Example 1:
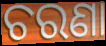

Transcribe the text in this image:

ଚରଣା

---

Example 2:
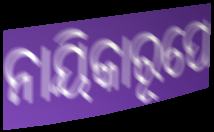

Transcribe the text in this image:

ନାୟିକାରୂପେ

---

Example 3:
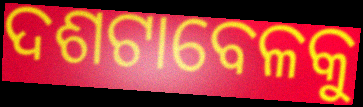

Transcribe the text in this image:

ଦଶଟାବେଳକୁ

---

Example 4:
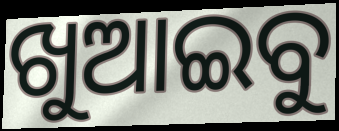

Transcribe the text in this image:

ଖୁଆଇବୁ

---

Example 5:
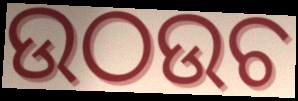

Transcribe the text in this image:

ଉଠଉଚ